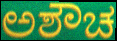
ಅಶೌಚ